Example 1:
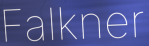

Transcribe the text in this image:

Falkner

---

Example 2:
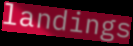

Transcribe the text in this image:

landings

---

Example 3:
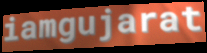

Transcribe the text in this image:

iamgujarat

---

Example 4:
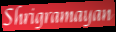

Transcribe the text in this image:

Shrigramayan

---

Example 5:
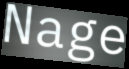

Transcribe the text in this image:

Nage